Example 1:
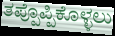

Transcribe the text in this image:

ತಪ್ಪೊಪ್ಪಿಕೊಳ್ಳಲು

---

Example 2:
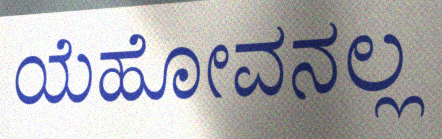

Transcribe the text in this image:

ಯೆಹೋವನಲ್ಲ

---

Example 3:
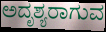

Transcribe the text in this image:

ಅದೃಶ್ಯರಾಗುವ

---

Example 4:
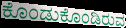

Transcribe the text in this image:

ಕೊಂಡುಕೊಂಡಿರುವ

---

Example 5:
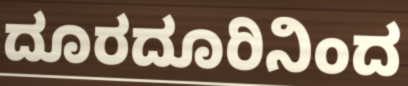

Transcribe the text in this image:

ದೂರದೂರಿನಿಂದ